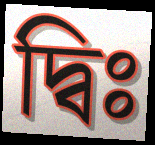
দ্বিঃ